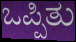
ಒಪ್ಪಿತು